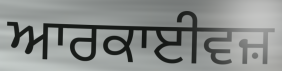
ਆਰਕਾਈਵਜ਼